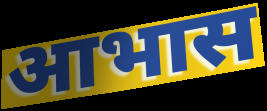
आभास